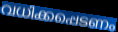
വധിക്കപ്പെടണം